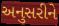
અનુસરીને